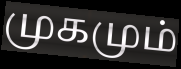
முகமும்